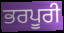
ਭਰਪੂਰੀ